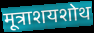
मूत्राशयशोथ